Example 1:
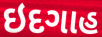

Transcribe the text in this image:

ઇદગાહ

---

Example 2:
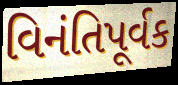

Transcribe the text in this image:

વિનંતિપૂર્વક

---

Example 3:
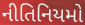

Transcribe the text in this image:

નીતિનિયમો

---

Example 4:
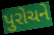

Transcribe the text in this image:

પુરોચને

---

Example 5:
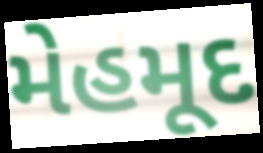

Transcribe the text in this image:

મેહમૂદ